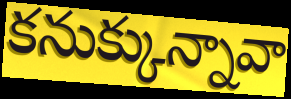
కనుక్కున్నావా